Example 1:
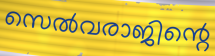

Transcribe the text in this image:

സെൽവരാജിന്റെ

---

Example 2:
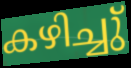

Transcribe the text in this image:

കഴിച്ചു്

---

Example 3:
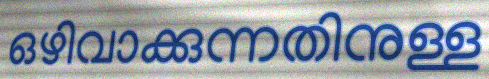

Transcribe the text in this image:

ഒഴിവാക്കുന്നതിനുള്ള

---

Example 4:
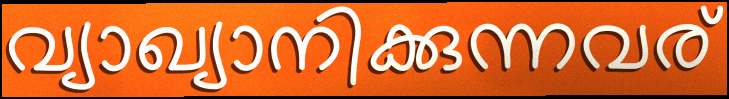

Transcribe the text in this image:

വ്യാഖ്യാനിക്കുന്നവര്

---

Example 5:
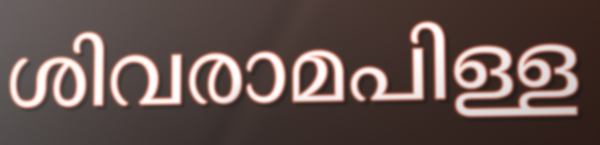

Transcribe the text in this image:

ശിവരാമപിള്ള